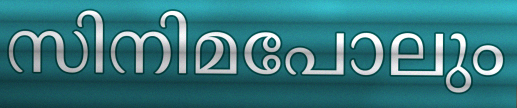
സിനിമപോലും